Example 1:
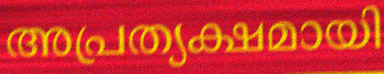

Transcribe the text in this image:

അപ്രത്യക്ഷമായി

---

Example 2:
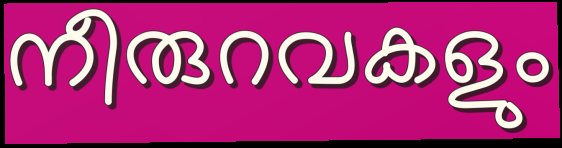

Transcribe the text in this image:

നീരുറവകളും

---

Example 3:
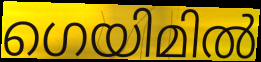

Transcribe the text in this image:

ഗെയിമിൽ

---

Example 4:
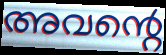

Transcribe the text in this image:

അവന്റെ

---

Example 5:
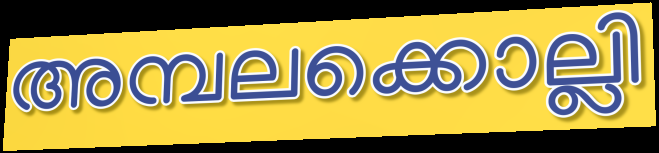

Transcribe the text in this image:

അമ്പലക്കൊല്ലി